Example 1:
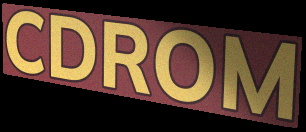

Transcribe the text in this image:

CDROM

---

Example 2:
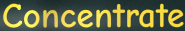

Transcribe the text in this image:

Concentrate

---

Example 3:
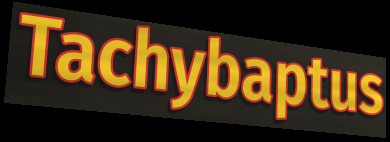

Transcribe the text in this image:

Tachybaptus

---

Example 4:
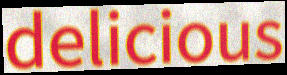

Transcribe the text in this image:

delicious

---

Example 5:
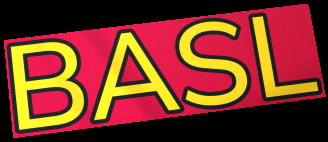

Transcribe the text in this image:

BASL